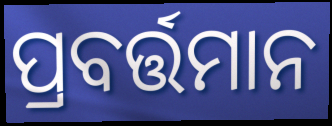
ପ୍ରବର୍ତ୍ତମାନ